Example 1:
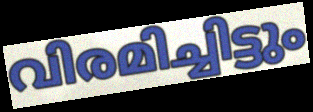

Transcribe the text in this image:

വിരമിച്ചിട്ടും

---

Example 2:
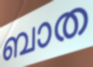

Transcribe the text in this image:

ബാത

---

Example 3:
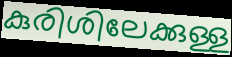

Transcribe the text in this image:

കുരിശിലേക്കുള്ള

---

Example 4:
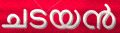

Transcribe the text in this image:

ചടയൻ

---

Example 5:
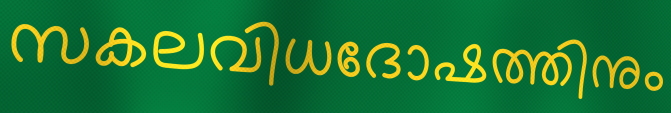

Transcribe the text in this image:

സകലവിധദോഷത്തിനും